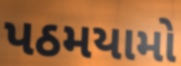
પઠમયામો